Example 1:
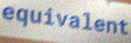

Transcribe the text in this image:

equivalent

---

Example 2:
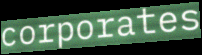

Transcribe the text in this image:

corporates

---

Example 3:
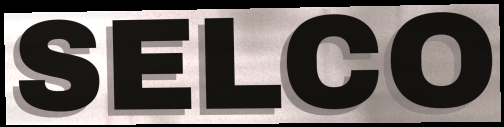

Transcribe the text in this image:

SELCO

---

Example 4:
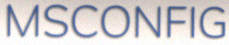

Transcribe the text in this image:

MSCONFIG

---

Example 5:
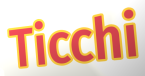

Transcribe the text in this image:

Ticchi